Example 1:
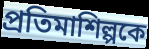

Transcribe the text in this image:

প্রতিমাশিল্পকে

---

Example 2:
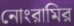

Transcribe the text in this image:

নোংরামির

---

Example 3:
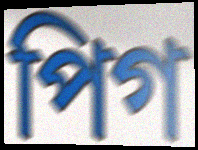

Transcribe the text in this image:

পিগ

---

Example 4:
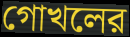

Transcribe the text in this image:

গোখলের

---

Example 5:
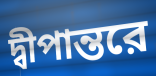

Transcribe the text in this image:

দ্বীপান্তরে